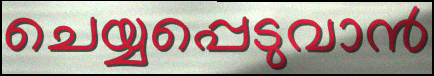
ചെയ്യപ്പെടുവാൻ